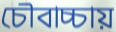
চৌবাচ্চায়